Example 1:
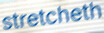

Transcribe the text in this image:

stretcheth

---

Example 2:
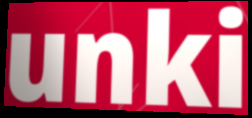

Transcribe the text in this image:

unki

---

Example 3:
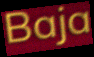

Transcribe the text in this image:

Baja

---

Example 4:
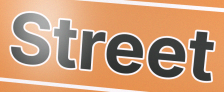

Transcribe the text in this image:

Street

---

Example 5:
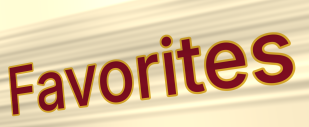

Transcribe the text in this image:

Favorites